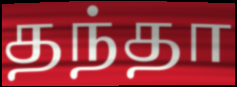
தந்தா